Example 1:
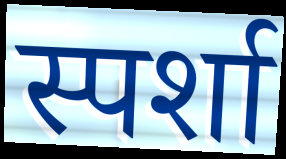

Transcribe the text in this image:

स्पर्शा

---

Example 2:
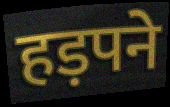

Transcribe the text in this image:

हड़पने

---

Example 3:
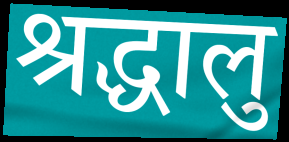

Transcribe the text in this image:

श्रद्धालु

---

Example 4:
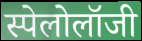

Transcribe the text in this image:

स्पेलोलॉजी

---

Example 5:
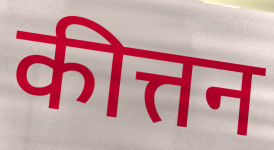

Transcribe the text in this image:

कीत्तन